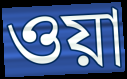
ওয়া